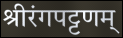
श्रीरंगपट्टणम्